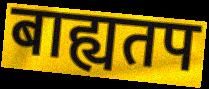
बाह्यतप